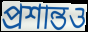
প্রশান্তও